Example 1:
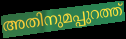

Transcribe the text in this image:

അതിനുമപ്പുറത്ത്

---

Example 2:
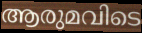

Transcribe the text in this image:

ആരുമവിടെ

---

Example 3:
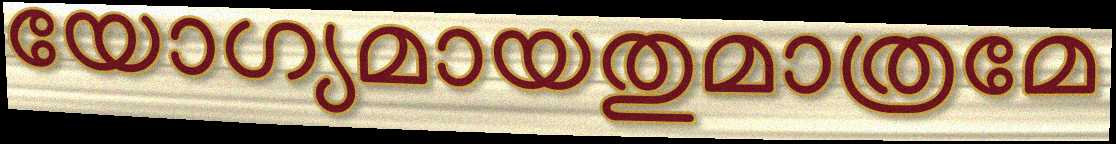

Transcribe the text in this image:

യോഗ്യമായതുമാത്രമേ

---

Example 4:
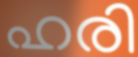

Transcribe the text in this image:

ഹരി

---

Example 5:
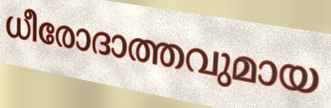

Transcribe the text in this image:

ധീരോദാത്തവുമായ